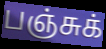
பஞ்சுக்